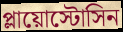
প্লায়োস্টোসিন